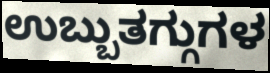
ಉಬ್ಬುತಗ್ಗುಗಳ